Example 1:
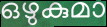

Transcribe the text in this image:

ഒഴുകുമാ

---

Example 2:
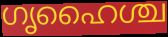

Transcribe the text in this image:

ഗൃഹൈശ്ച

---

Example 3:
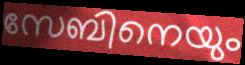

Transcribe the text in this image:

സേബിനെയും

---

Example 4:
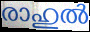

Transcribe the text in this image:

രാഹുൽ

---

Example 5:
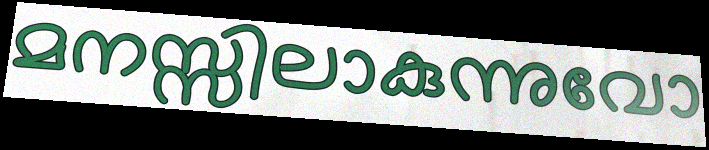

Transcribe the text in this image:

മനസ്സിലാകുന്നുവോ